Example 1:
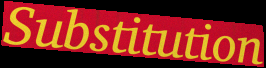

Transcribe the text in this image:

Substitution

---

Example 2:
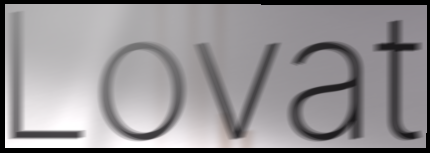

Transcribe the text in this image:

Lovat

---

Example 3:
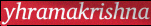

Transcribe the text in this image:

yhramakrishna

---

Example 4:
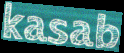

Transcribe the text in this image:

kasab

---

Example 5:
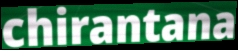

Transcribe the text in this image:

chirantana